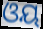
ଓୟ